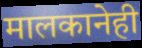
मालकानेही